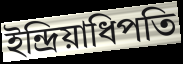
ইন্দ্রিয়াধিপতি